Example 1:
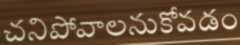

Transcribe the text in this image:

చనిపోవాలనుకోవడం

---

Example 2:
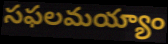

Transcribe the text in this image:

సఫలమయ్యాం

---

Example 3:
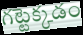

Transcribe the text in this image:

గట్టెక్కడం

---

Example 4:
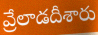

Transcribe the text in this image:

వ్రేలాడదీశారు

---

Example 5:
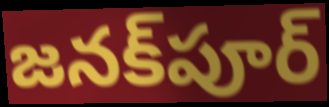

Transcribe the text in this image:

జనక్‌పూర్